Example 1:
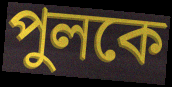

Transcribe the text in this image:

পুলকে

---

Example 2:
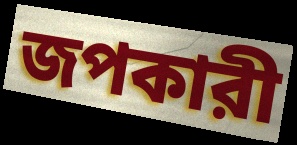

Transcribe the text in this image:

জপকারী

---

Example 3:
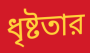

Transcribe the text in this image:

ধৃষ্টতার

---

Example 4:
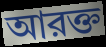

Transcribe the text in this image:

আরক্ত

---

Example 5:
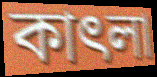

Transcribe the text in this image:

কাৎলা